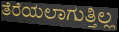
ತೆರೆಯಲಾಗುತ್ತಿಲ್ಲ